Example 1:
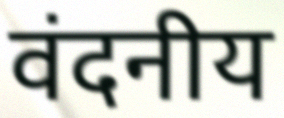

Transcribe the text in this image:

वंदनीय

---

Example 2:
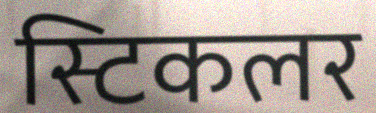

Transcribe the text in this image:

स्टिकलर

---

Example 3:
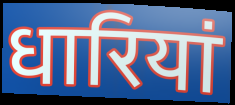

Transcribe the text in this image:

धारियां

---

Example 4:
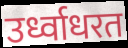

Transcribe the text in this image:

उर्ध्वाधरत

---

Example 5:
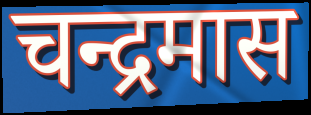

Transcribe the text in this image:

चन्द्रमास